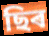
ছিৰ